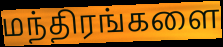
மந்திரங்களை